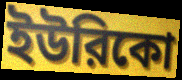
ইউরিকো